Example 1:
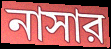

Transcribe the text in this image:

নাসার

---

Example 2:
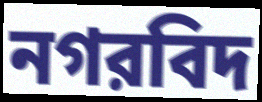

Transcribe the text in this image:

নগরবিদ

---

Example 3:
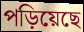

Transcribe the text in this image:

পড়িয়েছে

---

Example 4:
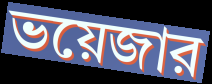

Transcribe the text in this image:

ভয়েজার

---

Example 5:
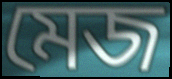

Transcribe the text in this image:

মেজ